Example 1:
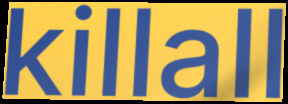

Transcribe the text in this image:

killall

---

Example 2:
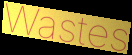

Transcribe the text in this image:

Wastes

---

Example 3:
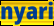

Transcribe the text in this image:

nyari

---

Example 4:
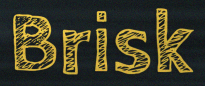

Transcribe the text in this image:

Brisk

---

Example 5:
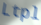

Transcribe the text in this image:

Ltpl